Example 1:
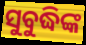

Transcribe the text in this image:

ସୁବୁଦ୍ଧିଙ୍କ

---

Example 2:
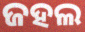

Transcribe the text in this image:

ଜହଲ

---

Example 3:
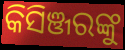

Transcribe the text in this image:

କିସିଞ୍ଜରଙ୍କୁ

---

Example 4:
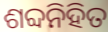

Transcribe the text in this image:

ଶବ୍ଦନିହିତ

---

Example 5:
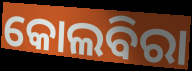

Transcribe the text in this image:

କୋଲବିରା